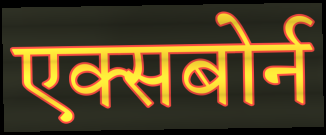
एक्सबोर्न